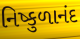
નિષ્કુળાનંદ